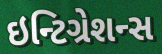
ઇન્ટિગ્રેશન્સ